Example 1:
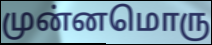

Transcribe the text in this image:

முன்னமொரு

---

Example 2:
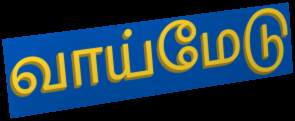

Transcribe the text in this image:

வாய்மேடு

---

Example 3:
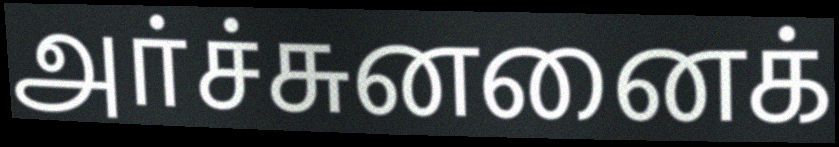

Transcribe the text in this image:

அர்ச்சுனனைக்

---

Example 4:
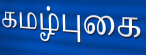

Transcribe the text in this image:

கமழ்புகை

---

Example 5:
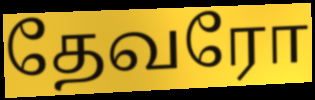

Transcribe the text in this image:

தேவரோ